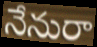
నేనురా